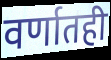
वर्णातही